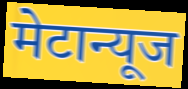
मेटान्यूज